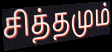
சித்தமும்